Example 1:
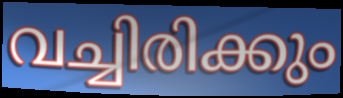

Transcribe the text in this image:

വച്ചിരിക്കും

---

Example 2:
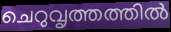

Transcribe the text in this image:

ചെറുവൃത്തത്തിൽ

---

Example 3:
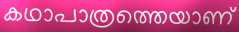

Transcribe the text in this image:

കഥാപാത്രത്തെയാണ്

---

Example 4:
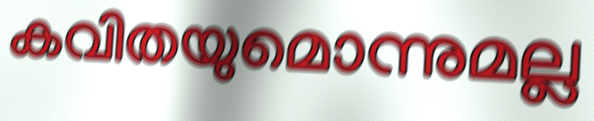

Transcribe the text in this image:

കവിതയുമൊന്നുമല്ല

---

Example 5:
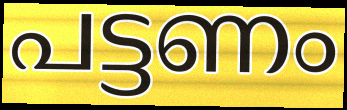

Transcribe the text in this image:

പട്ടണം